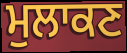
ਮੁਲਾਕਣ